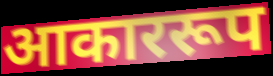
आकाररूप